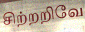
சிற்றறிவே